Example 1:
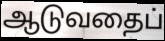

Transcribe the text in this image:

ஆடுவதைப்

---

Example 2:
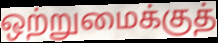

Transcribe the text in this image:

ஒற்றுமைக்குத்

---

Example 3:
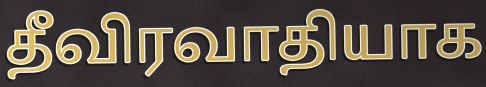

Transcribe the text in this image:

தீவிரவாதியாக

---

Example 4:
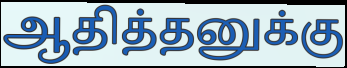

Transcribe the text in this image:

ஆதித்தனுக்கு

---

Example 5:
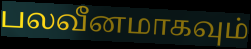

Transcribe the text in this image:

பலவீனமாகவும்